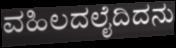
ವಹಿಲದಲೈದಿದನು